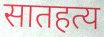
सातहत्य